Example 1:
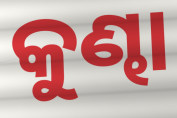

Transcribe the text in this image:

କୁଣ୍ଢା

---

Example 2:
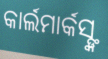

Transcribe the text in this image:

କାର୍ଲମାର୍କସ୍ଙ୍କ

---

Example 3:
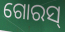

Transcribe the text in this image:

ଗୋରସ୍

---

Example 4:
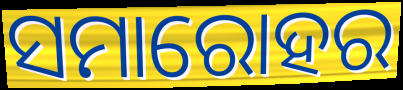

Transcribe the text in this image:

ସମାରୋହର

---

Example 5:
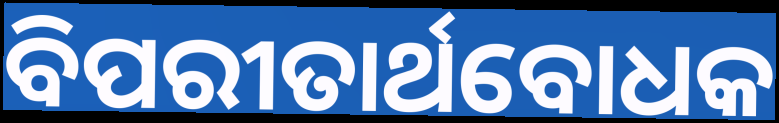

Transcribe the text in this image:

ବିପରୀତାର୍ଥବୋଧକ